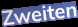
Zweiten